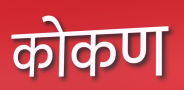
कोकण